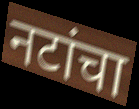
नटांचा